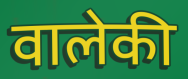
वालेकी